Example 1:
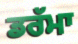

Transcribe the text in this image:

ਡਰੱਮਾ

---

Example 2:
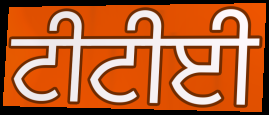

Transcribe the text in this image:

ਟੀਟੀਈ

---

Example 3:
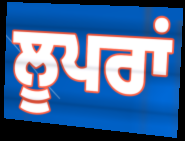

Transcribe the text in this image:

ਲੂਪਰਾਂ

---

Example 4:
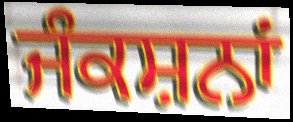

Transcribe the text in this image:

ਜੰਕਸ਼ਨਾਂ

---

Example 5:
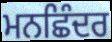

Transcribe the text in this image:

ਮਨਛਿੰਦਰ